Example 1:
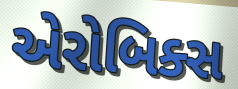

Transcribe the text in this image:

એરોબિક્સ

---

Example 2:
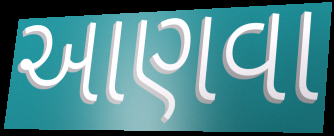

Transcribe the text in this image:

આણવા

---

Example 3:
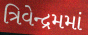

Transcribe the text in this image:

ત્રિવેન્દ્રમમાં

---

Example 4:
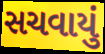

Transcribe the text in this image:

સચવાયું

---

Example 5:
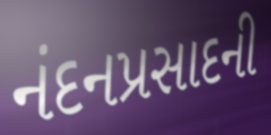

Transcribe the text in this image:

નંદનપ્રસાદની